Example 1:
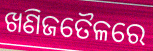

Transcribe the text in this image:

ଖଣିଜତୈଳରେ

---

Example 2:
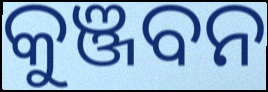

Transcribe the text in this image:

କୁଞ୍ଜବନ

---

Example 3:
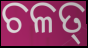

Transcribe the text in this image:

ଚଳତ୍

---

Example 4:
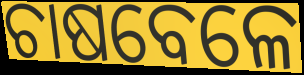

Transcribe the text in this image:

ଚାଷବେଳେ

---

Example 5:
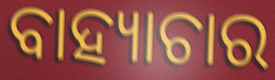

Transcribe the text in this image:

ବାହ୍ୟାଚାର